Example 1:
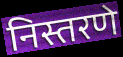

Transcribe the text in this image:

निस्तरणे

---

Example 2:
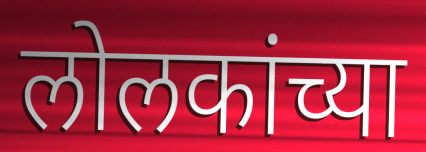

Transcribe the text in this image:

लोलकांच्या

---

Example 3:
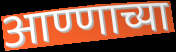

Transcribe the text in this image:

आण्णाच्या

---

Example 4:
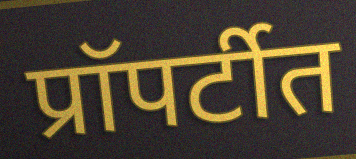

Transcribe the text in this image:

प्रॉपर्टीत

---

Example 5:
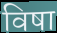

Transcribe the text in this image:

विषा